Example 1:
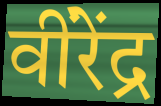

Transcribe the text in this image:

वींरेंद्र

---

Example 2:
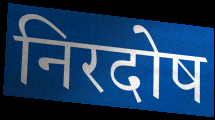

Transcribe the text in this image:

निरदोष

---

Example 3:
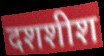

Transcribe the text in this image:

दशशीश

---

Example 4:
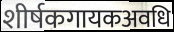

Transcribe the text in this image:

शीर्षकगायकअवधि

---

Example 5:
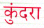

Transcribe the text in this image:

कुंदरा